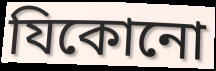
যিকোনো